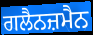
ਗਲੈਨਜ਼ਮੈਨ